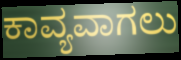
ಕಾವ್ಯವಾಗಲು